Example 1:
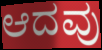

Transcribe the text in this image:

ಆದವು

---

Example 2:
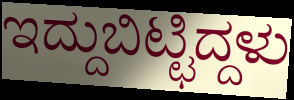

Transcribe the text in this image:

ಇದ್ದುಬಿಟ್ಟಿದ್ದಳು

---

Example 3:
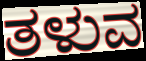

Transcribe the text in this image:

ತಳುವ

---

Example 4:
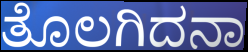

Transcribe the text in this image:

ತೊಲಗಿದನಾ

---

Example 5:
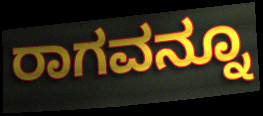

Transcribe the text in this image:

ರಾಗವನ್ನೂ